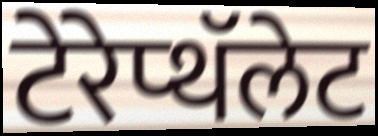
टेरेप्थॅलेट